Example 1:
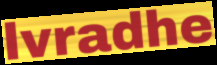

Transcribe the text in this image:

lvradhe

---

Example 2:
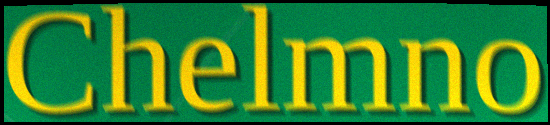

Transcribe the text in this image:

Chelmno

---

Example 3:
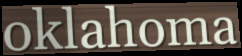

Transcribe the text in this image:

oklahoma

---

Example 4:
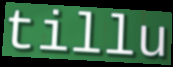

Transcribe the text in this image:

tillu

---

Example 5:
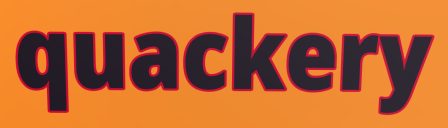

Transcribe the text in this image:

quackery